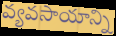
వ్యవసాయాన్ని